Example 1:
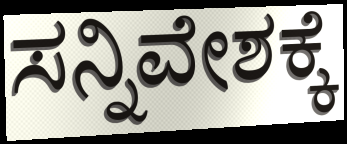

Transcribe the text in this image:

ಸನ್ನಿವೇಶಕ್ಕೆ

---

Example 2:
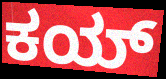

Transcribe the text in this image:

ಕಯ್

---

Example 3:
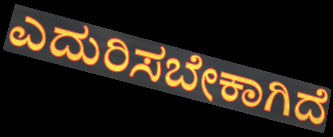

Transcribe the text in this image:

ಎದುರಿಸಬೇಕಾಗಿದೆ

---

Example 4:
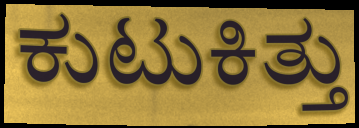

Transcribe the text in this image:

ಕುಟುಕಿತ್ತು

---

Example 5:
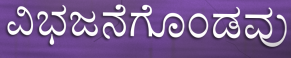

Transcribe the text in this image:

ವಿಭಜನೆಗೊಂಡವು